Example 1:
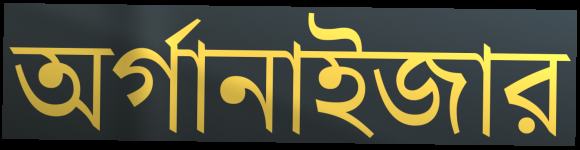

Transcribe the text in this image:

অর্গানাইজার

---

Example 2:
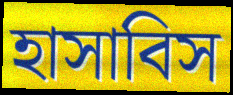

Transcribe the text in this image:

হাসাবিস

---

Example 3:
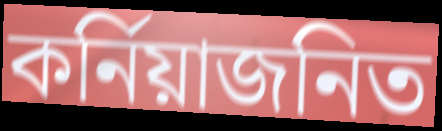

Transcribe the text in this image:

কর্নিয়াজনিত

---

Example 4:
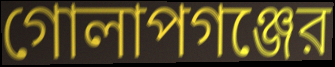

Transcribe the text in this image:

গোলাপগঞ্জের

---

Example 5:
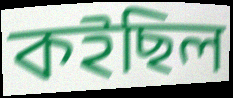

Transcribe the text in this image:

কইছিল